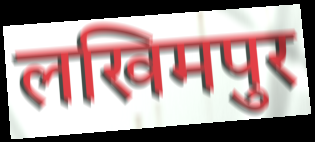
लखिमपुर